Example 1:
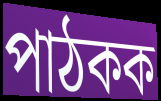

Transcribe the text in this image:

পাঠকক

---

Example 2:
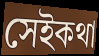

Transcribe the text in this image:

সেইকথা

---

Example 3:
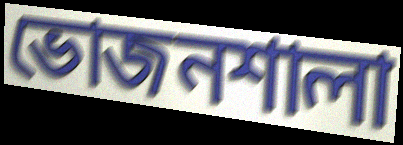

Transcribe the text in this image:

ভোজনশালা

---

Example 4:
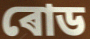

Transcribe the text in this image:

ৰোড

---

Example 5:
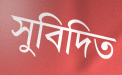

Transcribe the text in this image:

সুবিদিত